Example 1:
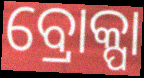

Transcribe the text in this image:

ବ୍ରୋକ୍ପା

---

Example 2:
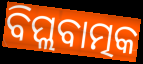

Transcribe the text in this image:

ବିପ୍ଲବାତ୍ମକ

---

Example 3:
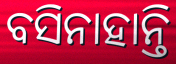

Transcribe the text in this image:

ବସିନାହାନ୍ତି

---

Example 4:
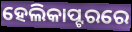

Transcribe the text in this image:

ହେଲିକାପ୍ଟରରେ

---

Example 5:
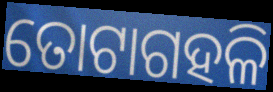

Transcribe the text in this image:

ତୋଟାଗହଳି